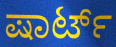
ಷಾರ್ಟ್